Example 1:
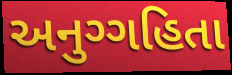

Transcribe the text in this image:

અનુગ્ગહિતા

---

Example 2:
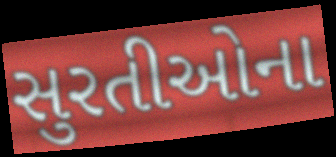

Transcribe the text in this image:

સુરતીઓના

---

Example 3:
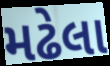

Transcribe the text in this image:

મઢેલા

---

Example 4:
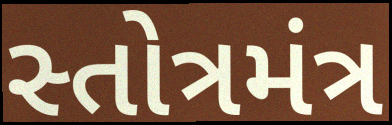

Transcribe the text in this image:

સ્તોત્રમંત્ર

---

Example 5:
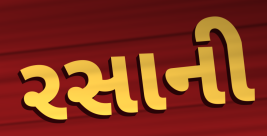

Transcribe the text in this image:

રસાની